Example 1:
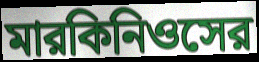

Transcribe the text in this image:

মারকিনিওসের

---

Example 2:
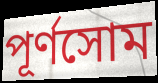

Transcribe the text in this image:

পূর্ণসোম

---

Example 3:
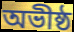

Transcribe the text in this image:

অভীষ্ঠ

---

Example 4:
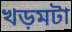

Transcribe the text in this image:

খড়মটা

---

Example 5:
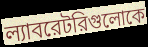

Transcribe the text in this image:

ল্যাবরেটরিগুলোকে